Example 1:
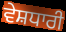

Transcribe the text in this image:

ਵੇਸ਼ਧਾਰੀ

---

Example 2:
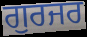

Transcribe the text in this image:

ਗੁਰਜਰ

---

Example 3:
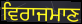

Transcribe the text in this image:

ਵਿਰਾਜਮਾਣ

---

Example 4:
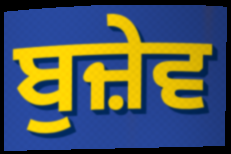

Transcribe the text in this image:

ਬੁਜ਼ੇਵ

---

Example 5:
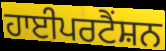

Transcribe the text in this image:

ਹਾਈਪਰਟੈਂਸ਼ਨ